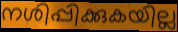
നശിപ്പിക്കുകയില്ല